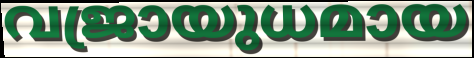
വജ്രായുധമായ